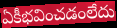
ఏకీభవించడంలేదు